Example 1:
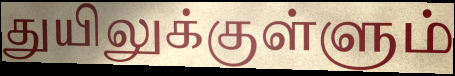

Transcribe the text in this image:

துயிலுக்குள்ளும்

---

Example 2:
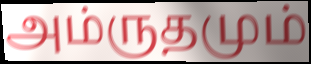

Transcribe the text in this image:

அம்ருதமும்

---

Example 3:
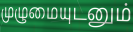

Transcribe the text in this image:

முழுமையுடனும்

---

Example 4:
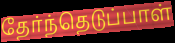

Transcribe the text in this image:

தேர்ந்தெடுப்பாள்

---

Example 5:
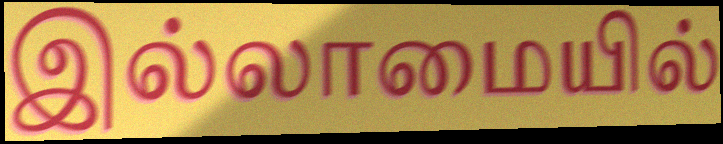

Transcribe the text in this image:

இல்லாமையில்